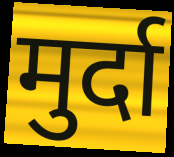
मुर्दा